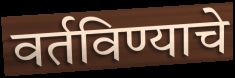
वर्तविण्याचे